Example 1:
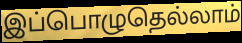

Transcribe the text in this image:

இப்பொழுதெல்லாம்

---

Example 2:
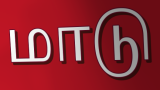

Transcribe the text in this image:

மாடு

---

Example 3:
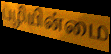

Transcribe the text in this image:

பழியின்மை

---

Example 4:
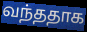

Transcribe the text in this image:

வந்ததாக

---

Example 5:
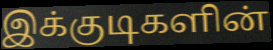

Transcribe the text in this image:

இக்குடிகளின்